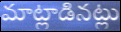
మాట్లాడినట్లు